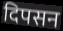
दिपसन